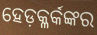
ହେଡ଼କ୍ଳର୍କଙ୍କର